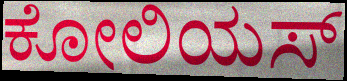
ಕೋಲಿಯಸ್